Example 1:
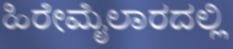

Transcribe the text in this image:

ಹಿರೇಮೈಲಾರದಲ್ಲಿ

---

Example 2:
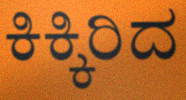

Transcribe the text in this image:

ಕಿಕ್ಕಿರಿದ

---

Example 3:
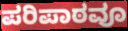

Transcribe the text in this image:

ಪರಿಪಾಠವೂ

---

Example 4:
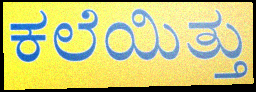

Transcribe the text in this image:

ಕಲೆಯಿತ್ತು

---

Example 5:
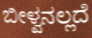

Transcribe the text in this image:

ಬೀಳ್ವನಲ್ಲದೆ